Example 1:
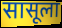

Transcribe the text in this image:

सासूला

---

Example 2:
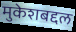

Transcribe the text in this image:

मुकेशबद्दल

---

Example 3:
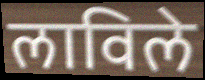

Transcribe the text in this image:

लाविले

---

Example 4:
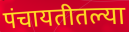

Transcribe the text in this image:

पंचायतीतल्या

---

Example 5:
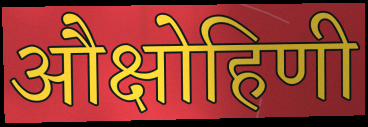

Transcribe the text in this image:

औक्षोहिणी